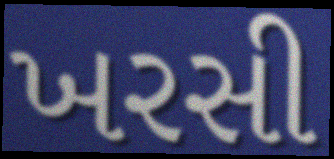
ખરસી